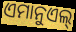
ଏମାନୁଏଲ୍